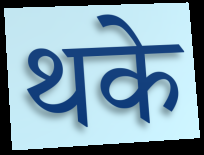
थके